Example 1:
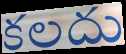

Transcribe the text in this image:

కలదు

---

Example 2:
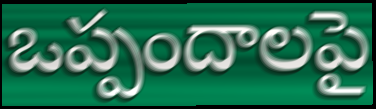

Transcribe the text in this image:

ఒప్పందాలపై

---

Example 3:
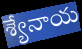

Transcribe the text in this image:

శ్యేనాయ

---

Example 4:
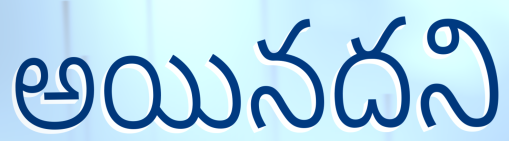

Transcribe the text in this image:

అయినదని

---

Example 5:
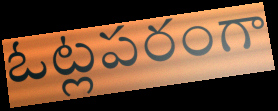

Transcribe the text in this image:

ఓట్లపరంగా